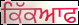
ਕਿੱਕਆਫ